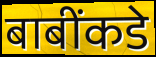
बाबींकडे